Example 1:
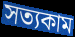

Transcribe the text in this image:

সত্যকাম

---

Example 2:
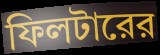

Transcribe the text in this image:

ফিলটারের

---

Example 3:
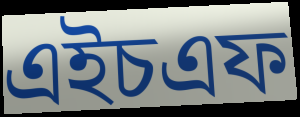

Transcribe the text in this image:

এইচএফ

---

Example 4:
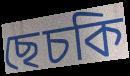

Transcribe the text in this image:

ছেচকি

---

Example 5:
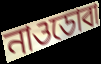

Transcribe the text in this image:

নাওডোবা